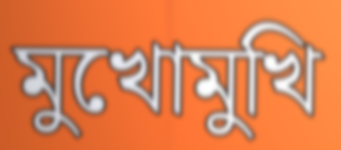
মুখোমুখি